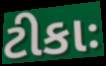
ટીકાઃ